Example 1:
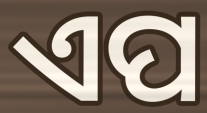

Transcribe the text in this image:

ଏପ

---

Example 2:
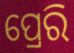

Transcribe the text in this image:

ପ୍ରେରି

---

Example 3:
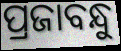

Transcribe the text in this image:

ପ୍ରଜାବନ୍ଧୁ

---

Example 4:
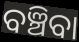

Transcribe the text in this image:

ବଞ୍ଚିବା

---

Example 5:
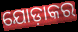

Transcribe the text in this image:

ଯୋଡ଼ାକର